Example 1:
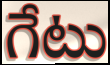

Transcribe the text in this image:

గేటు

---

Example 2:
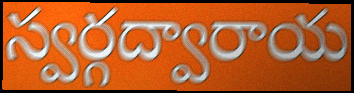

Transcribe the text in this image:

స్వర్గద్వారాయ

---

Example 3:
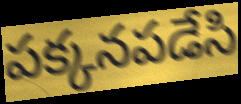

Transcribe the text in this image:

పక్కనపడేసి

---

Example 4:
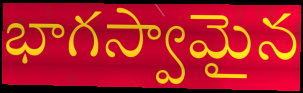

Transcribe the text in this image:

భాగస్వామైన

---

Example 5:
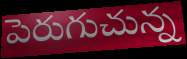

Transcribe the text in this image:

పెరుగుచున్న